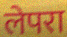
लेपरा